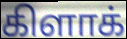
கிளாக்